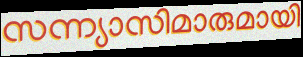
സന്ന്യാസിമാരുമായി